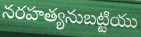
నరహత్యనుబట్టియు